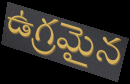
ఉగ్రమైన